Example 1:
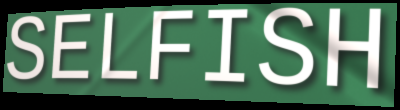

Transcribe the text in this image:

SELFISH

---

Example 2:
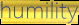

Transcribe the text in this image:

humility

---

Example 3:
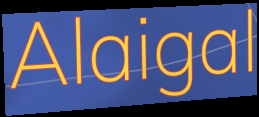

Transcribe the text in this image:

Alaigal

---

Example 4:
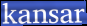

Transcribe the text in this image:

kansar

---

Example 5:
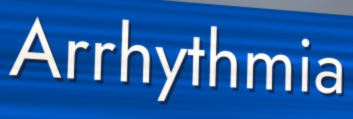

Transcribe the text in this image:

Arrhythmia